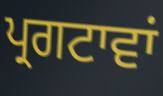
ਪ੍ਰਗਟਾਵਾਂ